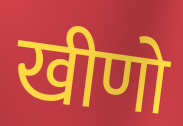
खीणो